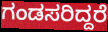
ಗಂಡಸರಿದ್ದರೆ